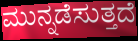
ಮುನ್ನಡೆಸುತ್ತದೆ